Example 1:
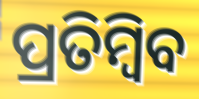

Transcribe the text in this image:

ପ୍ରତିମ୍ବିବ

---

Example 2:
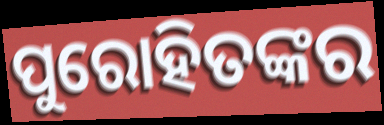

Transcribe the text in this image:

ପୁରୋହିତଙ୍କର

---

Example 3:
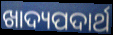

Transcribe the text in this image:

ଖାଦ୍ୟପଦାର୍ଥ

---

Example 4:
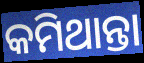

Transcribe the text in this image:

କମିଥାନ୍ତା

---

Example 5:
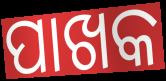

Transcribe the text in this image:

ପାଖକ